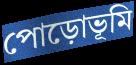
পোড়োভূমি